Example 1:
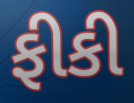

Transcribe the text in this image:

ફીકી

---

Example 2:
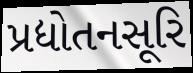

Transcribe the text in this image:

પ્રદ્યોતનસૂરિ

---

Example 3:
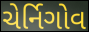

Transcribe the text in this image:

ચેર્નિગોવ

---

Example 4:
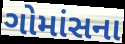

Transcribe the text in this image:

ગોમાંસના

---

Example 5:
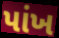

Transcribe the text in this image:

પાંખ